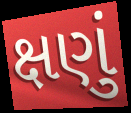
ક્ષણું